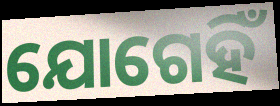
ଯୋଗେହିଁ